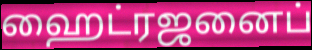
ஹைட்ரஜனைப்